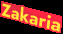
Zakaria